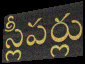
స్లీపర్లు